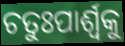
ଚତୁଃପାର୍ଶ୍ୱକୁ